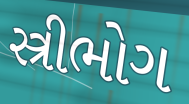
સ્ત્રીભોગ